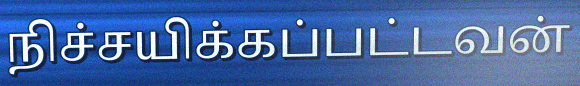
நிச்சயிக்கப்பட்டவன்